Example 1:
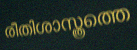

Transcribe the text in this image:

രീതിശാസ്ത്രത്തെ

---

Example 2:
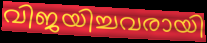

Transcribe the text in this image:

വിജയിച്ചവരായി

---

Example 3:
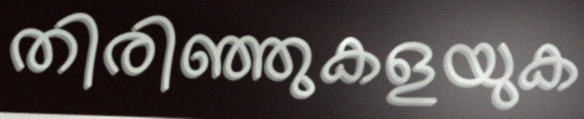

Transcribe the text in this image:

തിരിഞ്ഞുകളയുക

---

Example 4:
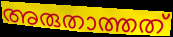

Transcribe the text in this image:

അരുതാത്തത്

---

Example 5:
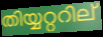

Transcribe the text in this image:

തിയ്യറ്ററില്